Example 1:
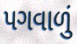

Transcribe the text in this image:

પગવાળું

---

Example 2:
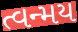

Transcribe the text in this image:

ત્વન્મય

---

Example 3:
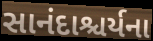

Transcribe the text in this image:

સાનંદાશ્ચર્યના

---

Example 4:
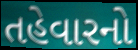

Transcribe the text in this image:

તહેવારનો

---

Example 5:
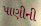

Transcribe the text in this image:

પાણીની